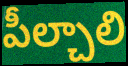
పీల్చాలి